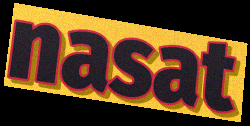
nasat